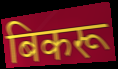
बिकरू